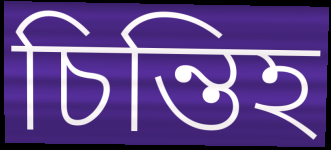
চিন্তিহ